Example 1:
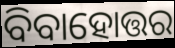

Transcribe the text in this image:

ବିବାହୋତ୍ତର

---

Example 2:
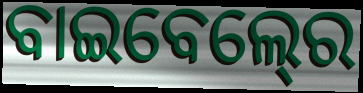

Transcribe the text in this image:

ବାଇବେଲ୍‍ରେ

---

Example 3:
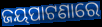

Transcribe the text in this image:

ଜୟପାଟଣାରେ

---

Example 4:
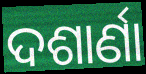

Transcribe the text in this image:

ଦଶାର୍ଣା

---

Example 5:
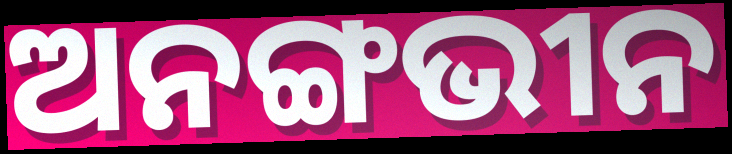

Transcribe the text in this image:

ଅନଙ୍ଗଭୀନ